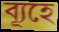
ব্যূহে